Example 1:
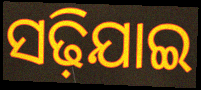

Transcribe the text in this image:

ସଢ଼ିଯାଇ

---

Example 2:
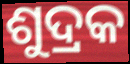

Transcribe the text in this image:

ଶୁଦ୍ରକ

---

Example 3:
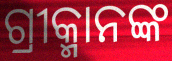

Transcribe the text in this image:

ଗ୍ରୀକ୍ମାନଙ୍କ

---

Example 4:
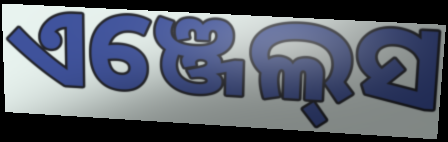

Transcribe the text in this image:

ଏଞ୍ଜେଲ୍‍ସ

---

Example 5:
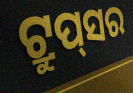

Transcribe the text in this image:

ଟ୍ରୁପ୍‌ସର